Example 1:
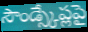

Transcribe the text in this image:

సౌండ్స్కేప్లపై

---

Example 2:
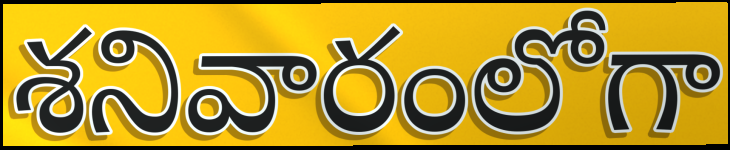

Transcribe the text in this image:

శనివారంలోగా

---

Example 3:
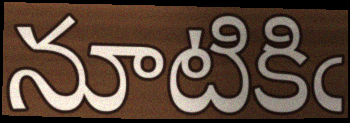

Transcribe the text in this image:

నూటికిఁ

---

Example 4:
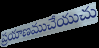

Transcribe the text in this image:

ప్రయాణముచేయుచు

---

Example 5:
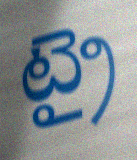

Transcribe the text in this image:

ట్రై